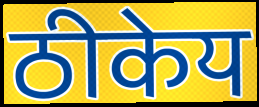
ठीकेय